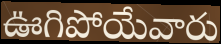
ఊగిపోయేవారు